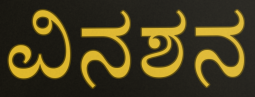
ವಿನಶನ